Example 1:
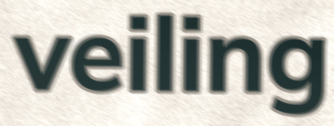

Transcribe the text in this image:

veiling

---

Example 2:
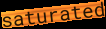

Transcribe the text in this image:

saturated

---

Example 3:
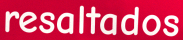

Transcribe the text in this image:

resaltados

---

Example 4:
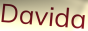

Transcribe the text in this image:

Davida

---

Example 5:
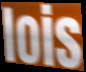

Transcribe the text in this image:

lois